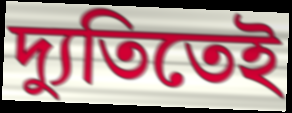
দ্যুতিতেই